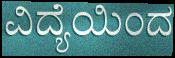
ವಿದ್ಯೆಯಿಂದ